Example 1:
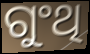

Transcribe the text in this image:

ଗୁଂଥି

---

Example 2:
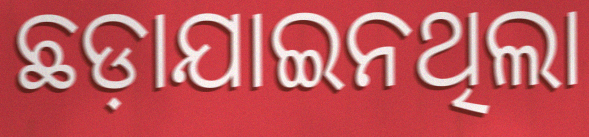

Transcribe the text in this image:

ଛଡ଼ାଯାଇନଥିଲା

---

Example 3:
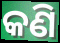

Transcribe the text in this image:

କଣି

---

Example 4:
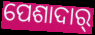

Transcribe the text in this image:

ପେଶାଦାର୍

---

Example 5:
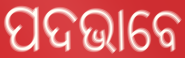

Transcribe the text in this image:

ପଦଭାବେ